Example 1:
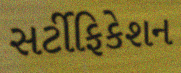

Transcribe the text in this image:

સર્ટીફિકેશન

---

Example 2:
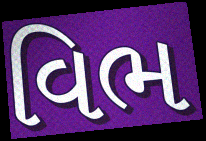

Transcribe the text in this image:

વિભ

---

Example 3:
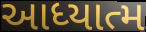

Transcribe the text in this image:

આધ્યાત્મ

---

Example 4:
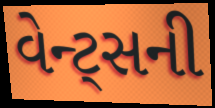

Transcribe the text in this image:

વેન્ટ્સની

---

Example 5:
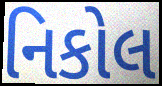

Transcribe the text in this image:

નિકોલ